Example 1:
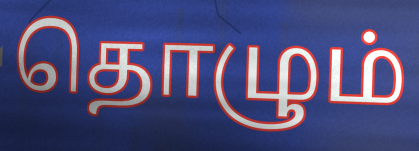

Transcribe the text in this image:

தொழும்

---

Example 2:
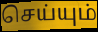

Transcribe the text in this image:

செய்யும்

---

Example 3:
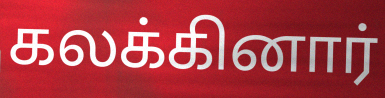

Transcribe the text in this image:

கலக்கினார்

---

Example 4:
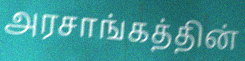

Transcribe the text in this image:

அரசாங்கத்தின்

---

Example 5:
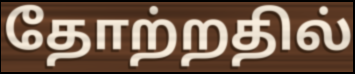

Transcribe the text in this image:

தோற்றதில்